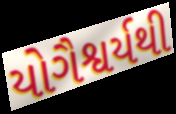
યોગૈશ્વર્યથી